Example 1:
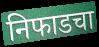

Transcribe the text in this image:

निफाडचा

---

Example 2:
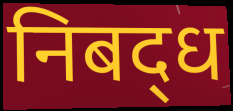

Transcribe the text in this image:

निबद्ध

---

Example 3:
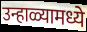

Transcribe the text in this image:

उन्हाळ्यामध्ये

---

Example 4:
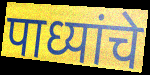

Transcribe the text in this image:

पाध्यांचे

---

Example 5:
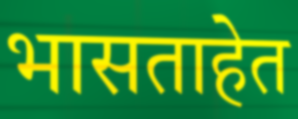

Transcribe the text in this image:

भासताहेत